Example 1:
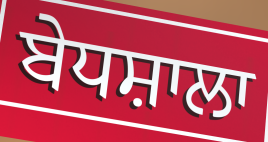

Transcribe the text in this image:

ਬੇਧਸ਼ਾਲਾ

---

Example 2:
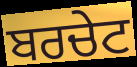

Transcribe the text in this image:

ਬਰਚੇਟ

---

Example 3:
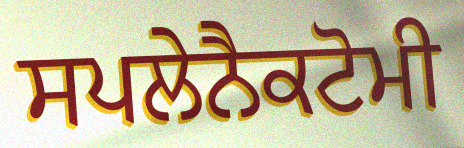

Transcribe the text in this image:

ਸਪਲੇਨੈਕਟੋਮੀ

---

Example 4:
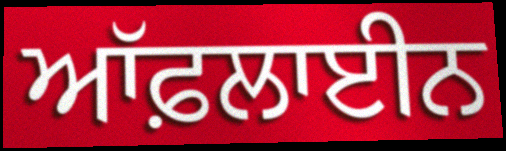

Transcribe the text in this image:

ਆੱਫ਼ਲਾਈਨ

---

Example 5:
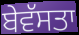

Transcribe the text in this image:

ਬੇਵੱਸਤਾ